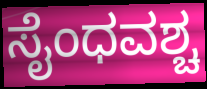
ಸೈಂಧವಶ್ಚ